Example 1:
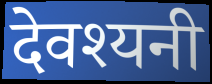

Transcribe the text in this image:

देवश्यनी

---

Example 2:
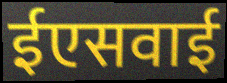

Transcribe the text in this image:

ईएसवाई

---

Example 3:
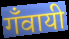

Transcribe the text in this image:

गँवायी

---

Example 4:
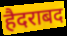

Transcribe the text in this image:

हैदराबद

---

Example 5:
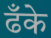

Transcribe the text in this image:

ढँके